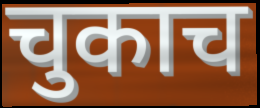
चुकाच